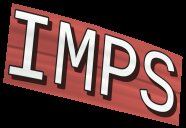
IMPS